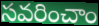
సవరించాం